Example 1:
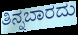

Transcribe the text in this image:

ತಿನ್ನಬಾರದು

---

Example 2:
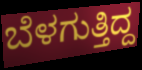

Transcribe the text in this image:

ಬೆಳಗುತ್ತಿದ್ದ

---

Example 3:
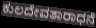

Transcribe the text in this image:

ಕುಲದೇವತಾರಾಧನೆ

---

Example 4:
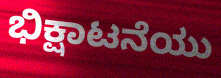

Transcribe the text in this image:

ಭಿಕ್ಷಾಟನೆಯು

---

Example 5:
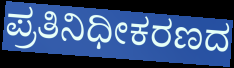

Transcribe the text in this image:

ಪ್ರತಿನಿಧೀಕರಣದ